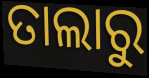
ତାଲାରୁ